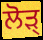
ਲੋੜ੍